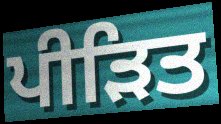
ਪੀੜਿਤ